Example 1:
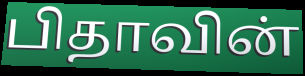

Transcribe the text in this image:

பிதாவின்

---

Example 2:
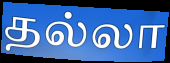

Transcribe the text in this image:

தல்லா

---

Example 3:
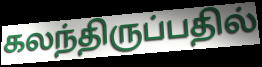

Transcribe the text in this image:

கலந்திருப்பதில்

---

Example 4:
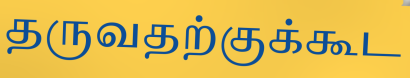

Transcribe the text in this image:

தருவதற்குக்கூட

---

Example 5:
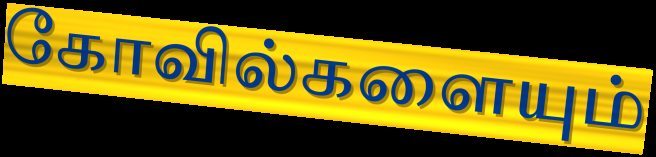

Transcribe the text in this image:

கோவில்களையும்